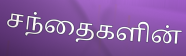
சந்தைகளின்